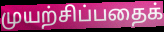
முயற்சிப்பதைக்